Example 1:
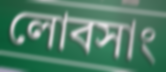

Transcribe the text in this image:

লোবসাং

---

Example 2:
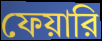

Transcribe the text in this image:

ফেয়ারি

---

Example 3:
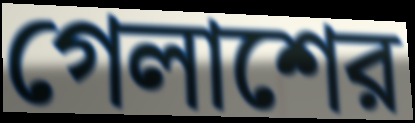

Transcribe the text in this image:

গেলাশের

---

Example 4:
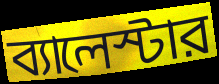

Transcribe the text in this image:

ব্যালেস্টার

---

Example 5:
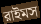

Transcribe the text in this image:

রাইমস